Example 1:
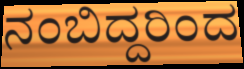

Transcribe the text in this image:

ನಂಬಿದ್ದರಿಂದ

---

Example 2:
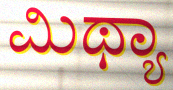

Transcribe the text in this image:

ಮಿಥ್ಯಾ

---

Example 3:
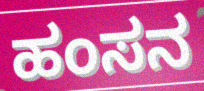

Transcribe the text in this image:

ಹಂಸನ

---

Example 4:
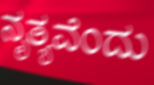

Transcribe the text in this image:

ನೃತ್ಯವೆಂದು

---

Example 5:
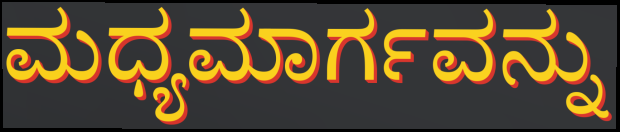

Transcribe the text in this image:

ಮಧ್ಯಮಾರ್ಗವನ್ನು